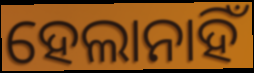
ହେଲାନାହିଁ